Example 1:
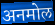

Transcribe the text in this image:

अनमोल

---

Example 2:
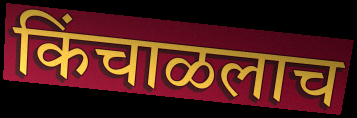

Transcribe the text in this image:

किंचाळलाच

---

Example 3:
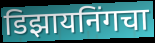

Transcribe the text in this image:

डिझायनिंगचा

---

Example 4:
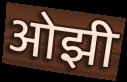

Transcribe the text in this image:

ओझी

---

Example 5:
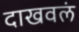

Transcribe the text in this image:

दाखवलं